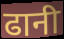
ढानी